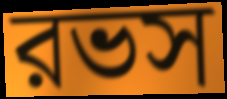
রভস